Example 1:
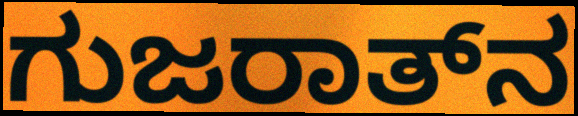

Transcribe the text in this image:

ಗುಜರಾತ್‌ನ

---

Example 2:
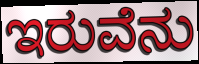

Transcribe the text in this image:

ಇರುವೆನು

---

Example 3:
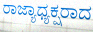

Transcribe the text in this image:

ರಾಜ್ಯಾಧ್ಯಕ್ಷರಾದ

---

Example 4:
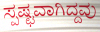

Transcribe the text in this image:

ಸ್ಪಷ್ಟವಾಗಿದ್ದವು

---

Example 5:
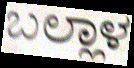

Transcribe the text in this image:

ಬಲ್ಲಾಳ